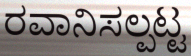
ರವಾನಿಸಲ್ಪಟ್ಟ